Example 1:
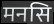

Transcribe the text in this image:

मनसि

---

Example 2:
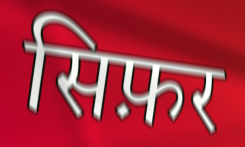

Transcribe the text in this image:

सिफ़र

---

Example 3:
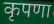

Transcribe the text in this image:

कृपणा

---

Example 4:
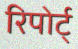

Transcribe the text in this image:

रिपोर्ट्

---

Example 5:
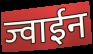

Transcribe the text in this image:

ज्वाईन